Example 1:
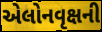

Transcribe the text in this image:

એલોનવૃક્ષની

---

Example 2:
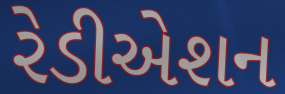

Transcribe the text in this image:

રેડીએશન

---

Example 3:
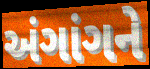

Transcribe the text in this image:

અંગાંગને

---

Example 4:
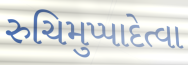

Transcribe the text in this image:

રુચિમુપ્પાદેત્વા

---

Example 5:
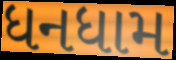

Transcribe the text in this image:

ધનધામ